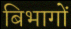
बिभागों